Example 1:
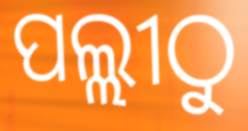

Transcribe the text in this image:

ପଲ୍ଲୀଠୁ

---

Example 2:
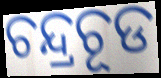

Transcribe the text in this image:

ଚନ୍ଦ୍ରଚୂଡ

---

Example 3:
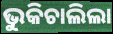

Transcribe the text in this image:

ଭୁକିଚାଲିଲା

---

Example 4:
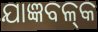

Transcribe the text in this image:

ଯାଜ୍ଞବଳ୍‌କ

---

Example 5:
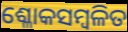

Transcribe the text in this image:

ଶ୍ଳୋକସମ୍ବଳିତ